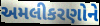
અમલીકરણોને